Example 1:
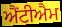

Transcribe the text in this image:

ਐਂਟੀਐਮ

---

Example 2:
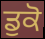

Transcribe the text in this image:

ਡੁਕੋ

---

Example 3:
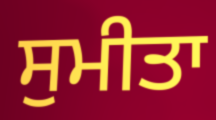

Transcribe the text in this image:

ਸੁਮੀਤਾ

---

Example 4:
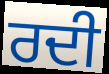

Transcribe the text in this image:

ਰਦੀ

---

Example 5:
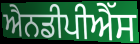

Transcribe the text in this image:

ਐਨਡੀਪੀਐੱਸ